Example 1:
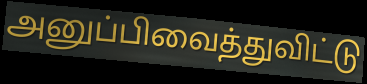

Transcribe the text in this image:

அனுப்பிவைத்துவிட்டு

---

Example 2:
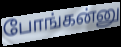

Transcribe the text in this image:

போங்கன்னு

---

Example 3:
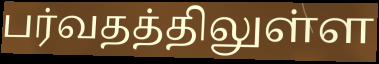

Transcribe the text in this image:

பர்வதத்திலுள்ள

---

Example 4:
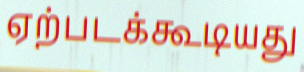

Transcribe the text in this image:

ஏற்படக்கூடியது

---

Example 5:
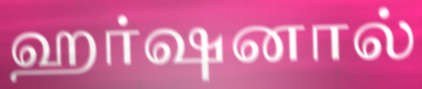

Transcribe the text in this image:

ஹர்ஷனால்